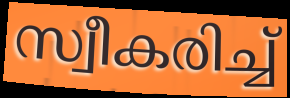
സ്വീകരിച്ച്